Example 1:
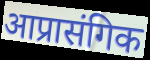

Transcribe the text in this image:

आप्रासंगिक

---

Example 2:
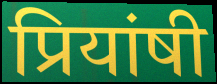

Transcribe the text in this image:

प्रियांषी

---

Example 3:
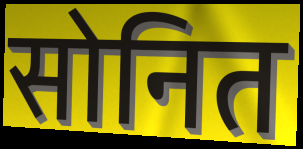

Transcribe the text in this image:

सोनित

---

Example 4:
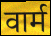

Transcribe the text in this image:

वार्म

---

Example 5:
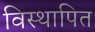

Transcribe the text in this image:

विस्थापित